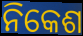
ନିକେଶ